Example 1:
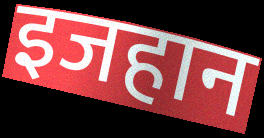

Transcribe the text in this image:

इजहान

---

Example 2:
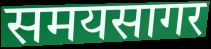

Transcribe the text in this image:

समयसागर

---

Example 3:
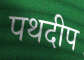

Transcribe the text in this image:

पथदीप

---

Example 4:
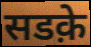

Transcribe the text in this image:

सडक़े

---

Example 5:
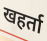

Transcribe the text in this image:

खहर्ता